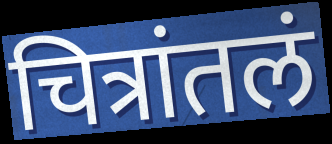
चित्रांतलं